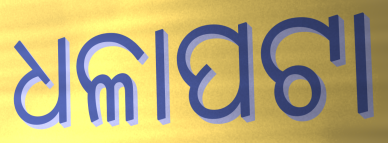
ଧଳାପଟା